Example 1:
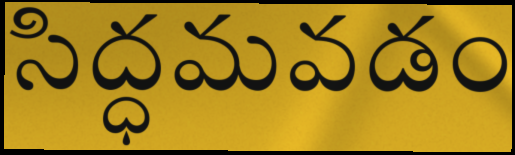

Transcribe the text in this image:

సిద్ధమవడం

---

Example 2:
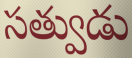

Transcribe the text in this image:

సత్వుడు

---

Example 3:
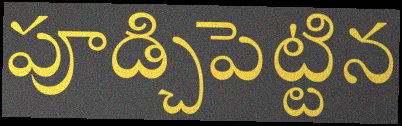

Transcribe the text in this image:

పూడ్చిపెట్టిన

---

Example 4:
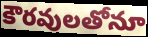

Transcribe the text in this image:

కౌరవులతోనూ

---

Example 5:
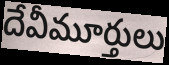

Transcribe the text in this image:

దేవీమూర్తులు